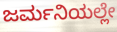
ಜರ್ಮನಿಯಲ್ಲೇ